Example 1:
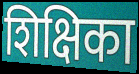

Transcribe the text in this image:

शिक्षिका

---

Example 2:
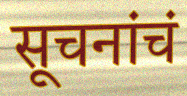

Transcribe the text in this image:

सूचनांचं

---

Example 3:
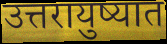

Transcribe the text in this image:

उत्तरायुष्यात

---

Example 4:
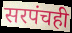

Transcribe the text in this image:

सरपंचही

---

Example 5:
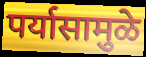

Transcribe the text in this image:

पर्यासामुळे